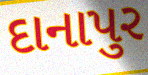
દાનાપુર